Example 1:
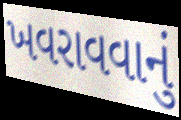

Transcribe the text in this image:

ખવરાવવાનું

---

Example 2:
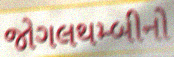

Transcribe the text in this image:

જોગલથમ્બીનો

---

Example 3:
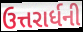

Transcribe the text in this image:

ઉત્તરાર્ધની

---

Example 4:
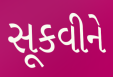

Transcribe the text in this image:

સૂકવીને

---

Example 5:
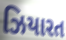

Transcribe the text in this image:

ઝિયારત